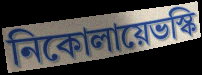
নিকোলায়েভস্কি